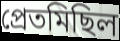
প্রেতমিছিল